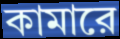
কামারে